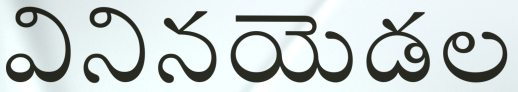
వినినయెడల